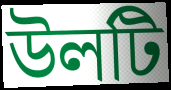
উলটি